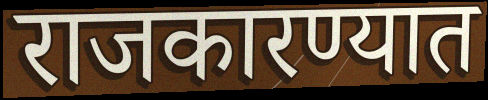
राजकारण्यात